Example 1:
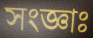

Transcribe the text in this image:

সংজ্ঞাঃ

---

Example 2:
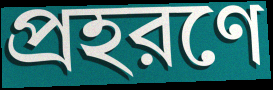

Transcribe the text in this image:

প্রহরণে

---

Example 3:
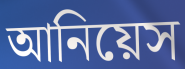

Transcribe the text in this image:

আনিয়েস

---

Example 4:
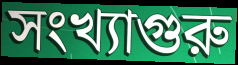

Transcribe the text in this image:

সংখ্যাগুরু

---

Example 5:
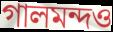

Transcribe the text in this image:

গালমন্দও